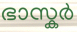
ഭാസ്കർ